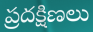
ప్రదక్షిణలు